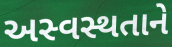
અસ્વસ્થતાને